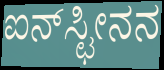
ಐನ್‌ಸ್ಟೀನನ